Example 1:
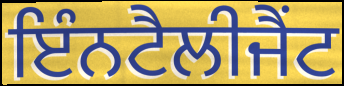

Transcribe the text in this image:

ਇੰਨਟੈਲੀਜੈਂਟ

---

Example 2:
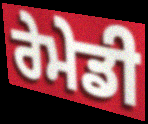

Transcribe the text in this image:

ਰੇਮੇਡੀ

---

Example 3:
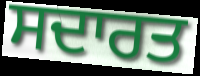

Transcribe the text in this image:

ਸਦਾਰਤ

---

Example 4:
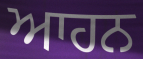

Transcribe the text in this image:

ਆਹਨ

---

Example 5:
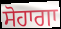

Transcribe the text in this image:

ਸੋਹਾਗਾ